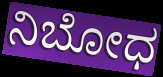
ನಿಬೋಧ